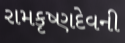
રામકૃષ્ણદેવની